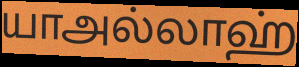
யாஅல்லாஹ்